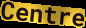
Centre